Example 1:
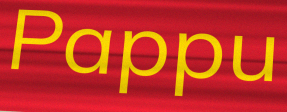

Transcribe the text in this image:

Pappu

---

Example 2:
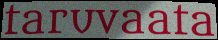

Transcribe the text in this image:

taruvaata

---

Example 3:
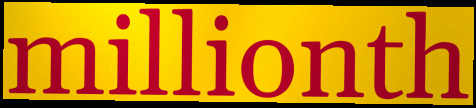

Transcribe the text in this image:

millionth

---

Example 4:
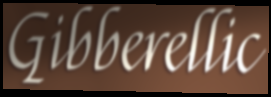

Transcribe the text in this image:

Gibberellic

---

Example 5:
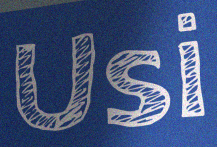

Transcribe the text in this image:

Usi